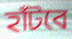
হাঁটবে